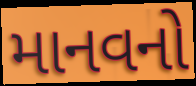
માનવનો